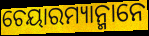
ଚେୟାରମ୍ୟାନ୍ମାନେ